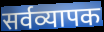
सर्वव्यापक